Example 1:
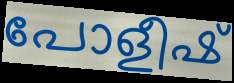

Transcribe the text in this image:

പോളീഷ്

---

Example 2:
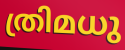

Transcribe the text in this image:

ത്രിമധു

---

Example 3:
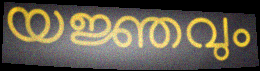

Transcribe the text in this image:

യജ്ഞവും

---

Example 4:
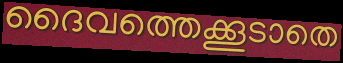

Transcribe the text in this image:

ദൈവത്തെക്കൂടാതെ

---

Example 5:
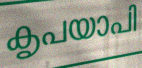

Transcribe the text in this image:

കൃപയാപി